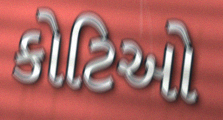
કોટિઓ